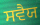
ਸਵੈਯ